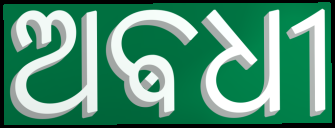
ଅଵଧୀ